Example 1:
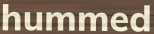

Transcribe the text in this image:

hummed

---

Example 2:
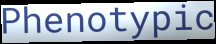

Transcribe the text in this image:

Phenotypic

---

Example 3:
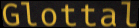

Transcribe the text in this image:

Glottal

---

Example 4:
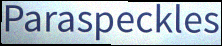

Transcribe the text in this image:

Paraspeckles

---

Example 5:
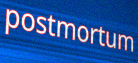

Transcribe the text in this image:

postmortum